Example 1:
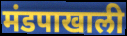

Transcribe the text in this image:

मंडपाखाली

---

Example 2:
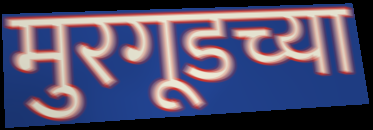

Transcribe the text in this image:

मुरगूडच्या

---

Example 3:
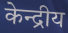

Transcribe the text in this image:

केन्द्रीय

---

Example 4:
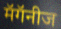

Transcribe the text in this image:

मॅगॅनीज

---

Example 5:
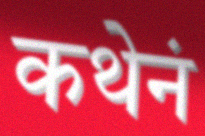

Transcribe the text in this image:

कथेनं